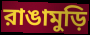
রাঙামুড়ি